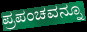
ಪ್ರಪಂಚವನ್ನೂ